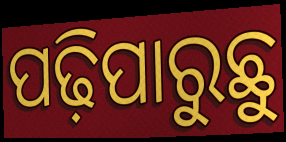
ପଢ଼ିପାରୁଛୁ